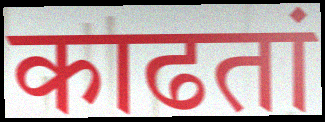
काढतां